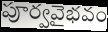
పూర్వవైభవం